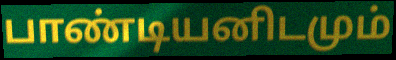
பாண்டியனிடமும்